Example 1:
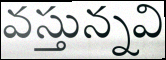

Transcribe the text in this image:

వస్తున్నవి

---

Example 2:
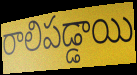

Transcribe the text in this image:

రాలిపడ్డాయి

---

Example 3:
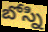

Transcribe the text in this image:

బోస్ని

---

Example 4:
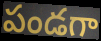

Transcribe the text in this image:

పండగా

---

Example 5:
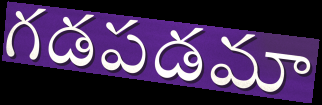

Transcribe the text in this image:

గడపడమా